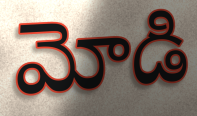
మోడి